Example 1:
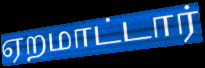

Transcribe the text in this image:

ஏறமாட்டார்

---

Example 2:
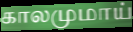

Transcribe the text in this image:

காலமுமாய்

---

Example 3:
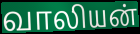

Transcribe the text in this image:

வாலியன்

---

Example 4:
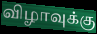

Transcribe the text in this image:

விழாவுக்கு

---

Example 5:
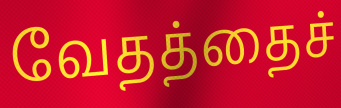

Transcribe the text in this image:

வேதத்தைச்